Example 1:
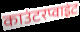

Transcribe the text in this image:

काउंटरप्वाइंट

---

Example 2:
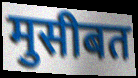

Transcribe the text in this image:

मुसीबत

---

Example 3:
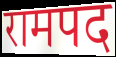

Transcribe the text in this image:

रामपद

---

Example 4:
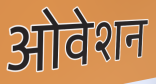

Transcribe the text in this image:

ओवेशन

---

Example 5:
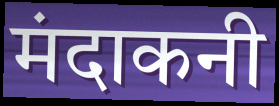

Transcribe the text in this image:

मंदाकनी